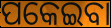
ପକେଇବା